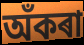
অঁকৰা